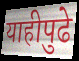
याहीपुढे